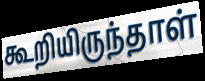
கூறியிருந்தாள்